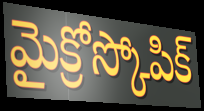
మైక్రోస్కోపిక్